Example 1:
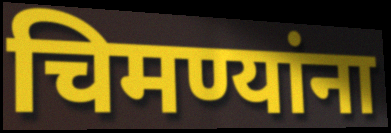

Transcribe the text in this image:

चिमण्यांना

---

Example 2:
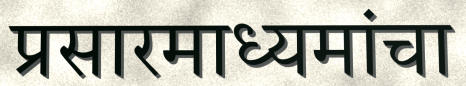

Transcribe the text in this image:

प्रसारमाध्यमांचा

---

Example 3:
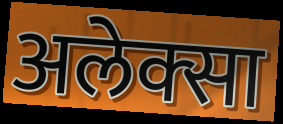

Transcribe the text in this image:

अलेक्‍सा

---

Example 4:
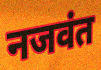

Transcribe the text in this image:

नजवंत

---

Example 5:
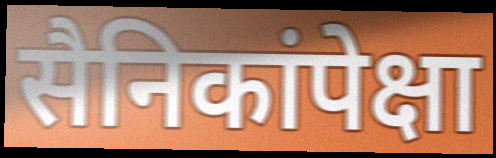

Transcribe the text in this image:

सैनिकांपेक्षा